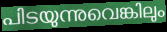
പിടയുന്നുവെങ്കിലും